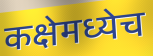
कक्षेमध्येच